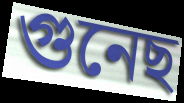
গুনেছ